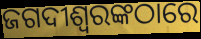
ଜଗଦୀଶ୍ୱରଙ୍କଠାରେ